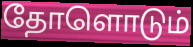
தோளொடும்